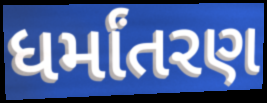
ધર્માંતરણ